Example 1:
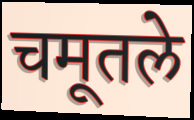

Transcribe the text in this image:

चमूतले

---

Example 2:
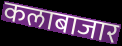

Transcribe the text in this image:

कलाबाजार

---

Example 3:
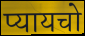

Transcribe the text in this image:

प्यायचो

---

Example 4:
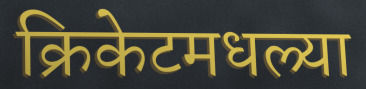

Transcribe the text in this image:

क्रिकेटमधल्या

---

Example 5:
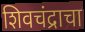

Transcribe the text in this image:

शिवचंद्राचा